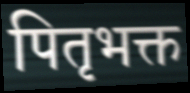
पितृभक्त